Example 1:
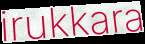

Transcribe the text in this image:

irukkara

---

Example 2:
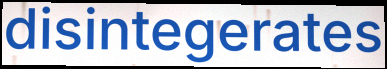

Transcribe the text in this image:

disintegerates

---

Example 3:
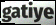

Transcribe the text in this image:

gatiye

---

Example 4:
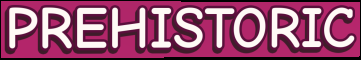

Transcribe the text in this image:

PREHISTORIC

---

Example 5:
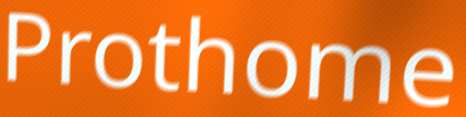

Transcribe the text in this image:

Prothome